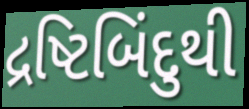
દ્રષ્ટિબિંદુથી